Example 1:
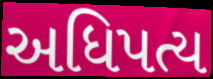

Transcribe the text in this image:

અધિપત્ય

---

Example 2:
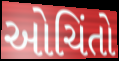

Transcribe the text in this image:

ઓચિંતો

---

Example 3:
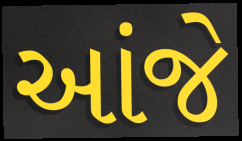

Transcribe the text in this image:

આંજે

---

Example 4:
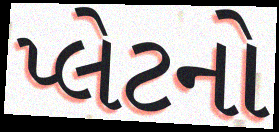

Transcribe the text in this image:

પ્લેટનો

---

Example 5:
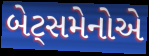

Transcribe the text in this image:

બેટ્સમેનોએ